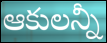
ఆకులన్నీ